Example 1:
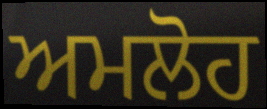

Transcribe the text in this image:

ਅਮਲੋਹ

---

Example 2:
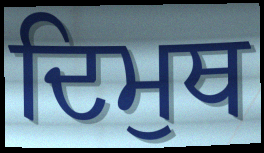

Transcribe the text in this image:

ਦਿਮੁਥ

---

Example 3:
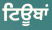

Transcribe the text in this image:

ਟਿਊਬਾਂ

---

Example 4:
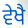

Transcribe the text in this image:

ਵੇਖੈ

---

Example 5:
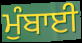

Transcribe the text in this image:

ਮੁੰਬਾਈ